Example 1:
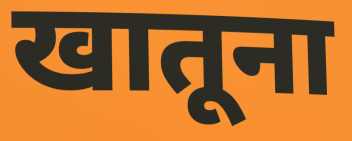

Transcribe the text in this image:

खातूना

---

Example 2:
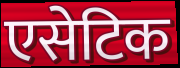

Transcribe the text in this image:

एसेटिक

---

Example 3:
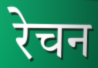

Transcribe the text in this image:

रेचन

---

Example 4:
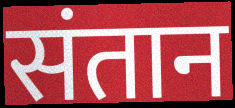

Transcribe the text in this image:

संतान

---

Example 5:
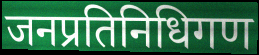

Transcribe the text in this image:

जनप्रतिनिधिगण